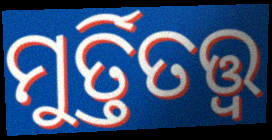
ମୁର୍ତ୍ତିତତ୍ତ୍ବ